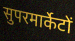
सुपरमार्केटों